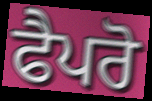
ਫੈਪਰੋ